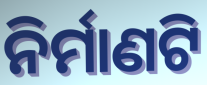
ନିର୍ମାଣଟି